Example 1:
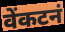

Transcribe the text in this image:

वेंकटनं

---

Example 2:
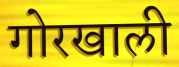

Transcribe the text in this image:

गोरखाली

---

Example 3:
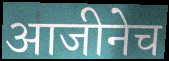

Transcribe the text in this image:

आजीनेच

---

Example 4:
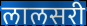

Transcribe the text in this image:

लालसरी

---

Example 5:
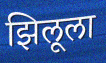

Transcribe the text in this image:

झिलूला